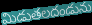
మిడుతలదండును